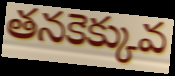
తనకెక్కువ